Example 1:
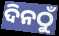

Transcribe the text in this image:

ଦିନଠୁଁ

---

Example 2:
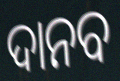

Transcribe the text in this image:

ଦାନବ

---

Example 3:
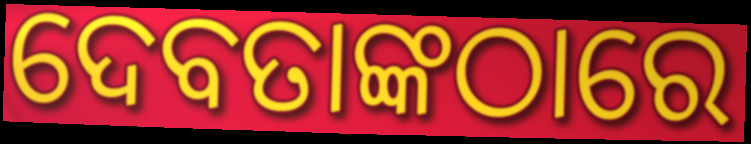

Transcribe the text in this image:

ଦେବତାଙ୍କଠାରେ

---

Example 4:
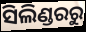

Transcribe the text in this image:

ସିଲିଣ୍ଡରରୁ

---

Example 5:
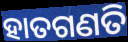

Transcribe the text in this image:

ହାତଗଣତି